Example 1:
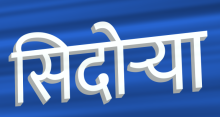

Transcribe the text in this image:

सिदोर्‍या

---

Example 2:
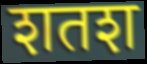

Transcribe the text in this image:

शतश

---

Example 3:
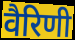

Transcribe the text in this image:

वैरिणी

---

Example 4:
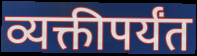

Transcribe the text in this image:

व्यक्तीपर्यंत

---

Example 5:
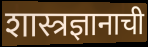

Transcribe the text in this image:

शास्त्रज्ञानाची